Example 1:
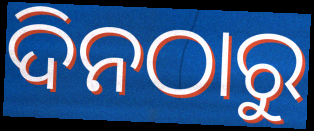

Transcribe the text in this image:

ଦିନଠାରୁ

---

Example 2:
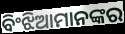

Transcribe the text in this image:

ବିଂଝିଆମାନଙ୍କର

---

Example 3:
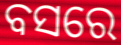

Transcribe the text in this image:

ବସରେ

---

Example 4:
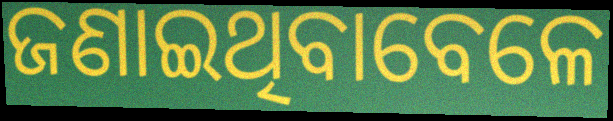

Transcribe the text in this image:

ଜଣାଇଥିବାବେଳେ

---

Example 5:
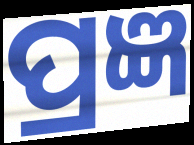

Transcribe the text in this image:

ପ୍ରଜ୍ଞ